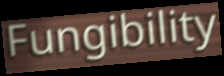
Fungibility